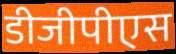
डीजीपीएस